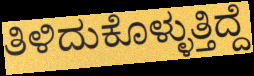
ತಿಳಿದುಕೊಳ್ಳುತ್ತಿದ್ದೆ